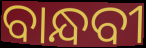
ବାନ୍ଧବୀ